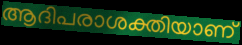
ആദിപരാശക്തിയാണ്